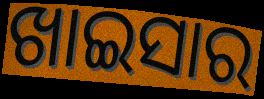
ଖାଇସାର